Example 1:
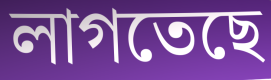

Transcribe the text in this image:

লাগতেছে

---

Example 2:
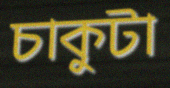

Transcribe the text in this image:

চাকুটা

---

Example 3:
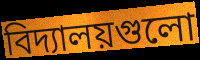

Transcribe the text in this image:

বিদ্যালয়গুলো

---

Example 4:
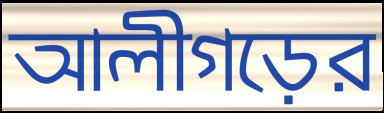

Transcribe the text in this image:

আলীগড়ের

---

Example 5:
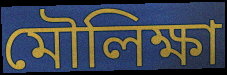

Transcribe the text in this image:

মৌলিক্ষা